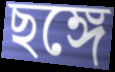
ছঙ্গে